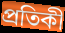
প্ৰতিকী